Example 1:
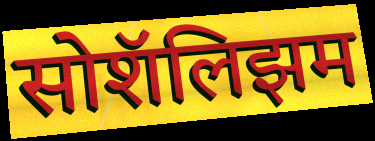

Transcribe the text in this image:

सोशॅलिझम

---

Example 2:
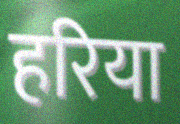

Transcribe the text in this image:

हरिया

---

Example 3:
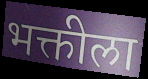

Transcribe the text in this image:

भक्तीला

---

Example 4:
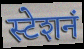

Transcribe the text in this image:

स्टेशनं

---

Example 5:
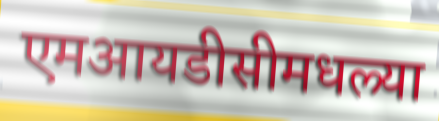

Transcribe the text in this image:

एमआयडीसीमधल्या